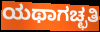
ಯಥಾಗಚ್ಛತಿ